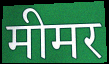
मीमर